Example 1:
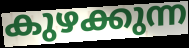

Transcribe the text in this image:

കുഴക്കുന്ന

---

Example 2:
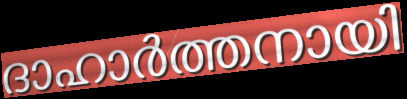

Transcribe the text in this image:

ദാഹാർത്തനായി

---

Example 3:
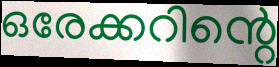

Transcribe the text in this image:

ഒരേക്കറിന്റെ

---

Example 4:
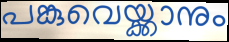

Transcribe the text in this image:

പങ്കുവെയ്ക്കാനും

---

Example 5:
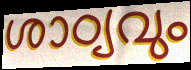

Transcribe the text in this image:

ശാഠ്യവും